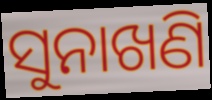
ସୁନାଖଣି